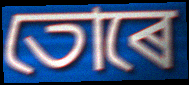
তোৰে